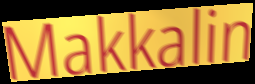
Makkalin